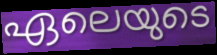
ഏലെയുടെ